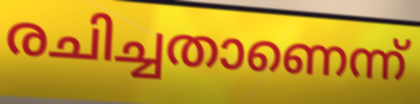
രചിച്ചതാണെന്ന്